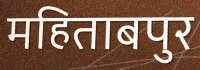
महिताबपुर